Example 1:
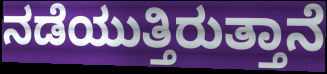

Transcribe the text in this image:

ನಡೆಯುತ್ತಿರುತ್ತಾನೆ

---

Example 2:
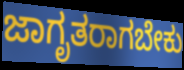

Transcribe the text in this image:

ಜಾಗೃತರಾಗಬೇಕು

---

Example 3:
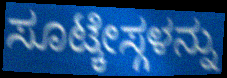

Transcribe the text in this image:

ಸೂಟ್ಕೇಸ್ಗಳನ್ನು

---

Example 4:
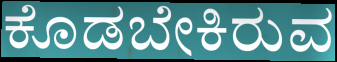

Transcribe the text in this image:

ಕೊಡಬೇಕಿರುವ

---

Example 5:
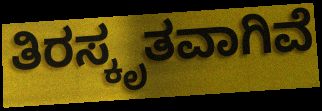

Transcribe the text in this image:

ತಿರಸ್ಕೃತವಾಗಿವೆ